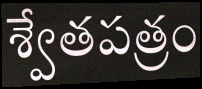
శ్వేతపత్రం